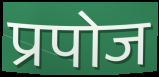
प्रपोज